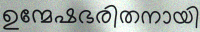
ഉന്മേഷഭരിതനായി